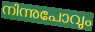
നിന്നുപോവും